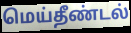
மெய்தீண்டல்